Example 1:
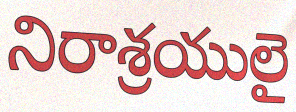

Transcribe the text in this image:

నిరాశ్రయులై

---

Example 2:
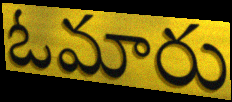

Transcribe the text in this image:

ఓమారు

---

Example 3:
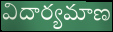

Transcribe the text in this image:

విదార్యమాణ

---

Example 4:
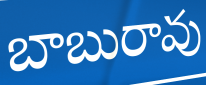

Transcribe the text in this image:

బాబురావు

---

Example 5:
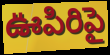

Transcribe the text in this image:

ఊపిరిపై